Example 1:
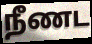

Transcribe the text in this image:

நீணட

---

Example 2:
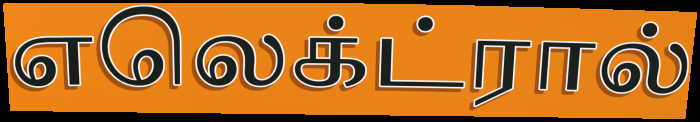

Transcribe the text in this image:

எலெக்ட்ரால்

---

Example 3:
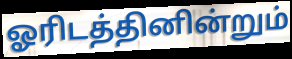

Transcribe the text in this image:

ஓரிடத்தினின்றும்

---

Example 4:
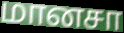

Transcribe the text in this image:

மானசா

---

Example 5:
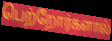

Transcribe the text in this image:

பெற்றோர்களால்